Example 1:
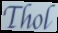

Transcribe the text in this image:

Thol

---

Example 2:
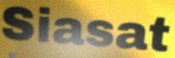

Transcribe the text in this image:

Siasat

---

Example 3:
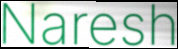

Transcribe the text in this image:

Naresh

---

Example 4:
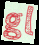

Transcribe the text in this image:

gl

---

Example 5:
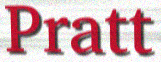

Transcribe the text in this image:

Pratt